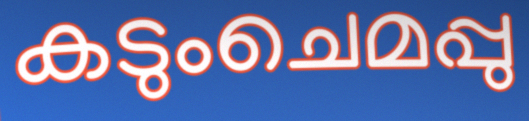
കടുംചെമപ്പു